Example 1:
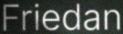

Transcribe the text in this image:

Friedan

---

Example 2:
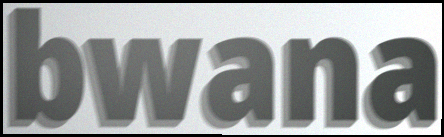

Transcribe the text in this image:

bwana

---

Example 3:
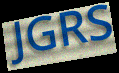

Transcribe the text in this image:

JGRS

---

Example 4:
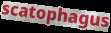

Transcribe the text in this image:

scatophagus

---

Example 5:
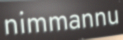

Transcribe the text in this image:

nimmannu